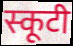
स्कूटी